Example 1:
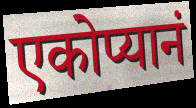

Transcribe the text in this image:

एकोप्यानं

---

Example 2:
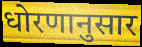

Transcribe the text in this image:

धोरणानुसार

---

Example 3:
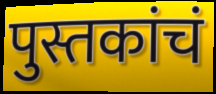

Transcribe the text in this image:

पुस्तकांचं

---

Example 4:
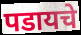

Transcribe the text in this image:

पडायचे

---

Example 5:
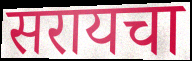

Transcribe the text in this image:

सरायचा